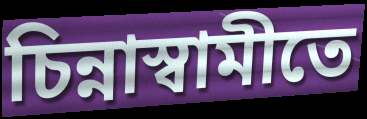
চিন্নাস্বামীতে